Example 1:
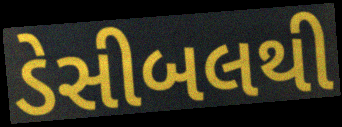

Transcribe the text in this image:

ડેસીબલથી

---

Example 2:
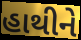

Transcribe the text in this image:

હાથીને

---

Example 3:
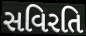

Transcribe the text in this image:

સવિરતિ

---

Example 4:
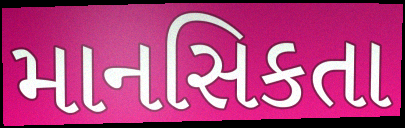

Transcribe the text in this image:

માનસિકતા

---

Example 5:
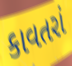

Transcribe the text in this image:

કાવતરાં